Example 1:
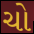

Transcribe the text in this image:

ચો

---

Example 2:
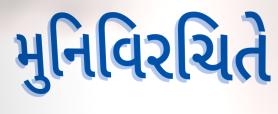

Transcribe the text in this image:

મુનિવિરચિતે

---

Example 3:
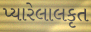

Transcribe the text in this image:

પ્યારેલાલકૃત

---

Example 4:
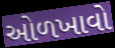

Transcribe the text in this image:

ઓળખાવો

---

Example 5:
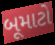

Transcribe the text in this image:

બૂમાટો